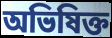
অভিষিক্ত